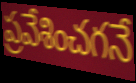
ప్రవేశించగనే